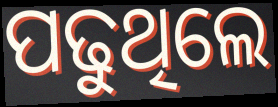
ପଢୁଥିଲେ